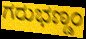
ಗರುಭಣ್ಡಂ